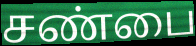
சண்பை